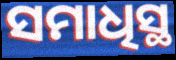
ସମାଧିସ୍ଥ